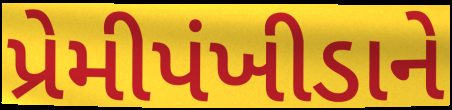
પ્રેમીપંખીડાને